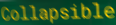
Collapsible